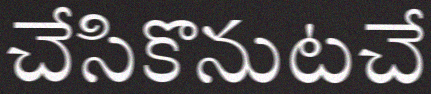
చేసికొనుటచే